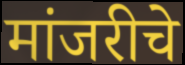
मांजरीचे